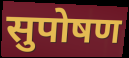
सुपोषण